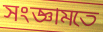
সংজ্ঞামতে